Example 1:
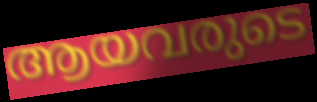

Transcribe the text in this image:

ആയവരുടെ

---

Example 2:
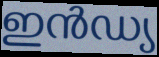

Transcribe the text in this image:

ഇൻഡ്യ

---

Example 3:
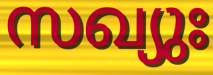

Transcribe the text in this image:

സഖ്യുഃ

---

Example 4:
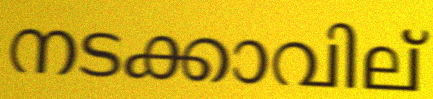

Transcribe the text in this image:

നടക്കാവില്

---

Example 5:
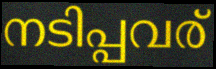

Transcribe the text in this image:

നടിപ്പവര്